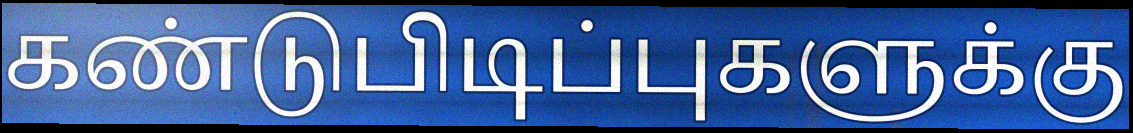
கண்டுபிடிப்புகளுக்கு